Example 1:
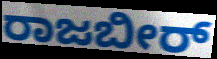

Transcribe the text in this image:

ರಾಜಬೀರ್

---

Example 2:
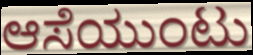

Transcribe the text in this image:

ಆಸೆಯುಂಟು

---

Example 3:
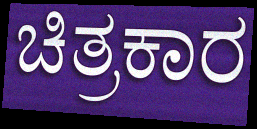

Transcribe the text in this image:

ಚಿತ್ರಕಾರ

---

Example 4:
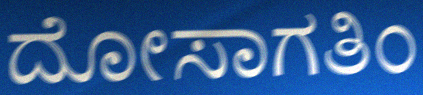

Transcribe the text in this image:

ದೋಸಾಗತಿಂ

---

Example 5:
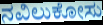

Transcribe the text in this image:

ನವಿಲುಕೋಸು